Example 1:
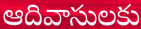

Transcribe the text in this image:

ఆదివాసులకు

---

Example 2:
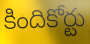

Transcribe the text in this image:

కిందికోర్టు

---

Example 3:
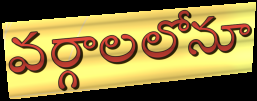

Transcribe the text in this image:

వర్గాలలోనూ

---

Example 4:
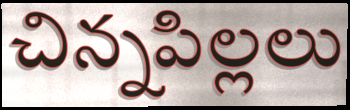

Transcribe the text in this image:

చిన్నపిల్లలు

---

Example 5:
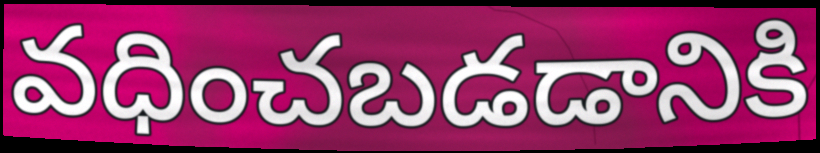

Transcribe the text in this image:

వధించబడడానికి